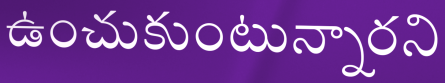
ఉంచుకుంటున్నారని